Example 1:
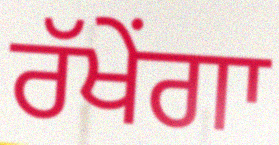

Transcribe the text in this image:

ਰੱਖੇਂਗਾ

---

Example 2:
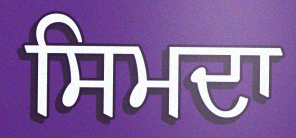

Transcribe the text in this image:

ਸਿਮਦਾ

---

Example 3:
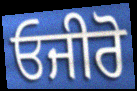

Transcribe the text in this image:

ਓਜੀਰੋ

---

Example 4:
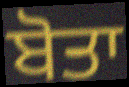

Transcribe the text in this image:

ਬੋਤਾ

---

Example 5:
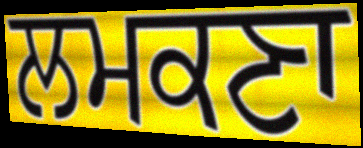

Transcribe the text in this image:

ਲਮਕਣਾ